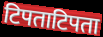
टिपताटिपता